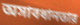
অসাবধানতার